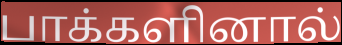
பாக்களினால்